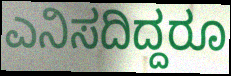
ಎನಿಸದಿದ್ದರೂ